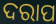
ଦରାପ